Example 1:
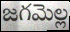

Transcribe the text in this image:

జగమెల్ల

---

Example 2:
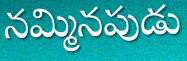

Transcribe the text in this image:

నమ్మినపుడు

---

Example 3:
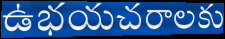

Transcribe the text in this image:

ఉభయచరాలకు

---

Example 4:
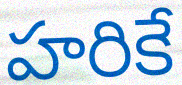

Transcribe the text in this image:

హరికే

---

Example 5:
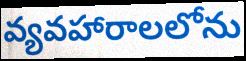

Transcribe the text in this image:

వ్యవహారాలలోను